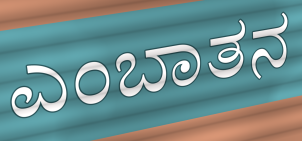
ಎಂಬಾತನ